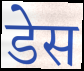
डेस